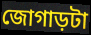
জোগাড়টা